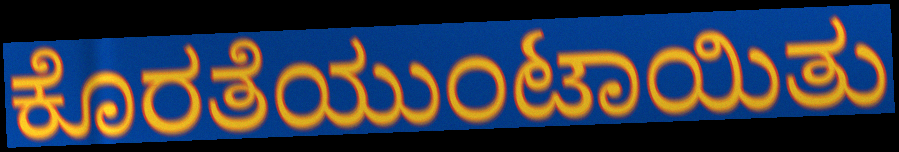
ಕೊರತೆಯುಂಟಾಯಿತು